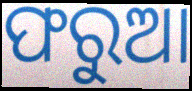
ଫରୁଆ